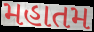
મહાતમ